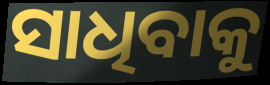
ସାଧିବାକୁ